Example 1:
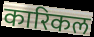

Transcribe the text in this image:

कारिकल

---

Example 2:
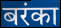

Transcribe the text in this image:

बरंका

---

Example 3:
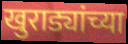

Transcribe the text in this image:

खुराड्यांच्या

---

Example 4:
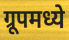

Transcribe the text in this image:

ग्रूपमध्ये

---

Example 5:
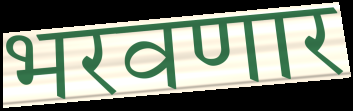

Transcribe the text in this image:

भरवणार